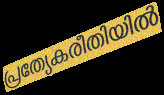
പ്രത്യേകരീതിയിൽ